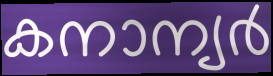
കനാന്യർ